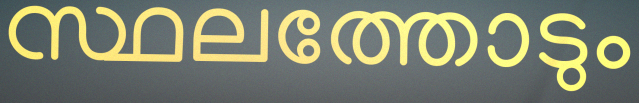
സ്ഥലത്തോടും